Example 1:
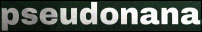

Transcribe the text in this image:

pseudonana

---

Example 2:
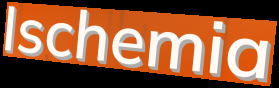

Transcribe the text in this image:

Ischemia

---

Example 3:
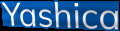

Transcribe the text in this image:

Yashica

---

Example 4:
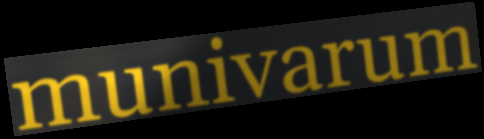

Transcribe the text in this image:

munivarum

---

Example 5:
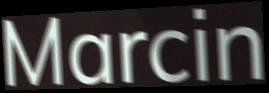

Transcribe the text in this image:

Marcin